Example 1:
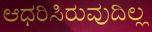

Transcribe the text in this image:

ಆಧರಿಸಿರುವುದಿಲ್ಲ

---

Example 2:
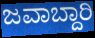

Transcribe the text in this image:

ಜವಾಬ್ದಾರಿ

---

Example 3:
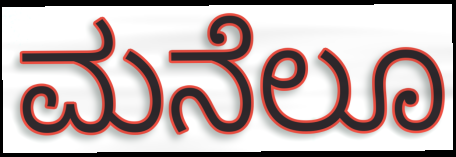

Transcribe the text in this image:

ಮನೆಲೂ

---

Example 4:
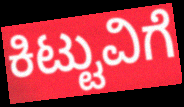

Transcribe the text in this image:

ಕಿಟ್ಟುವಿಗೆ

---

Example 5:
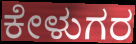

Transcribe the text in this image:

ಕೇಳುಗರ